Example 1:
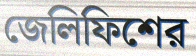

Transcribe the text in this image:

জেলিফিশের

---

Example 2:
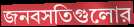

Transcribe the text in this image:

জনবসতিগুলোর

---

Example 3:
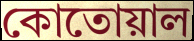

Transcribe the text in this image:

কোতোয়াল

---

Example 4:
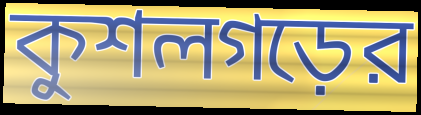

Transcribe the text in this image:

কুশলগড়ের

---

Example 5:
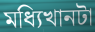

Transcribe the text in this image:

মধ্যিখানটা